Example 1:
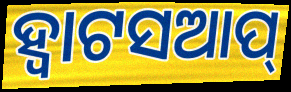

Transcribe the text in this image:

ହ୍ବାଟସଆପ୍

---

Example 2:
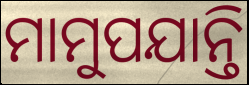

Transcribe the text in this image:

ମାମୁପଯାନ୍ତି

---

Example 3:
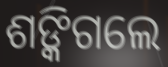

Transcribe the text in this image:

ଶଙ୍କିଗଲେ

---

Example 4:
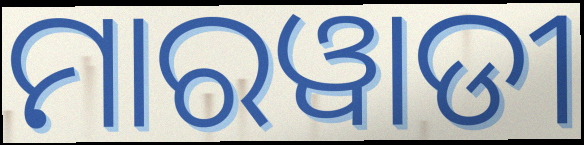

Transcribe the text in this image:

ମାରୱାଡୀ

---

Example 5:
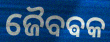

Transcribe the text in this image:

ଜୈବଵକ